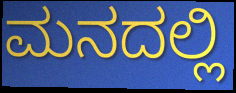
ಮನದಲ್ಲಿ